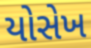
યોસેખ